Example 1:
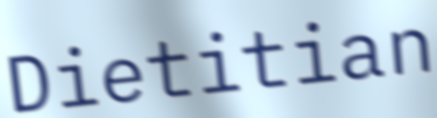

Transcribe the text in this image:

Dietitian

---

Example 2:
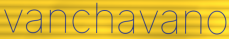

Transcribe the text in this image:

vanchavano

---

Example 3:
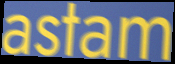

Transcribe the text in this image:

astam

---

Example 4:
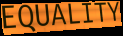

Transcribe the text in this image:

EQUALITY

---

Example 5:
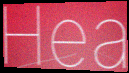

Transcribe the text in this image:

Hea